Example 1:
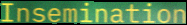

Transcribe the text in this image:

Insemination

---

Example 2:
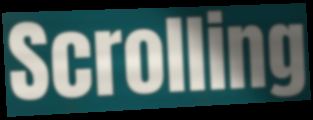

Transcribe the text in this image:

Scrolling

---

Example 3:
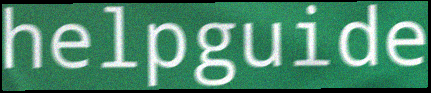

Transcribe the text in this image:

helpguide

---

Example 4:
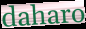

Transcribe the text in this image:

daharo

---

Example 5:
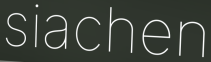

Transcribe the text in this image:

siachen